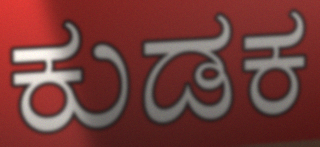
ಕುಡಕ